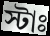
স্টাঃ